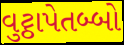
વુટ્ઠાપેતબ્બો